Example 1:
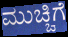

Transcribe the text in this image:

ಮುಚ್ಚಿಗೆ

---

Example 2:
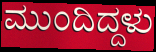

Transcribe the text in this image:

ಮುಂದಿದ್ದಳು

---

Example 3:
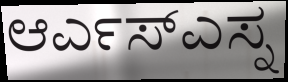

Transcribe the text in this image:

ಆರ್ಎಸ್ಎಸ್ನ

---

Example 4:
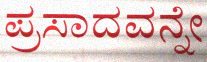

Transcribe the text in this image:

ಪ್ರಸಾದವನ್ನೇ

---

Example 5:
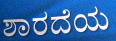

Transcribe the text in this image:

ಶಾರದೆಯ